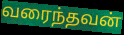
வரைந்தவன்